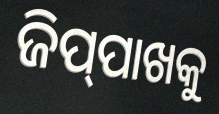
ଜିପ୍‌ପାଖକୁ